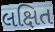
લક્ષિત